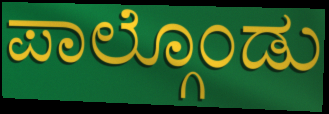
ಪಾಲ್ಗೊಂಡು